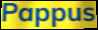
Pappus